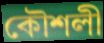
কৌশলী